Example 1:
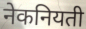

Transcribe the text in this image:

नेकनियती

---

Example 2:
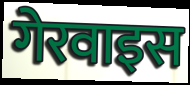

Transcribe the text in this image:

गेरवाइस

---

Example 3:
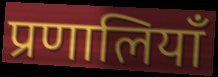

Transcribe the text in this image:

प्रणालियाँ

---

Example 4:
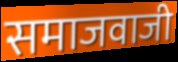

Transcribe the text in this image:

समाजवाजी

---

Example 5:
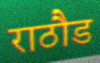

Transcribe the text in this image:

राठौड